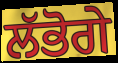
ਲੱਭੋਗੇ